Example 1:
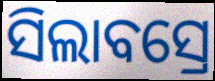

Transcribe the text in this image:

ସିଲାବସ୍ରେ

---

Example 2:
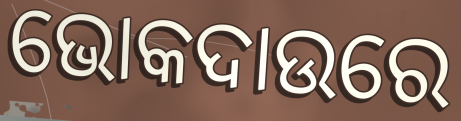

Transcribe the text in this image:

ଭୋକଦାଉରେ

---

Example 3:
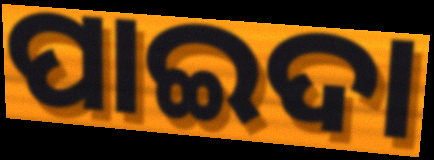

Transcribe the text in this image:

ପାଇଦା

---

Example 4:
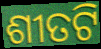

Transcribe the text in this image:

ଶୀତଟି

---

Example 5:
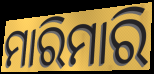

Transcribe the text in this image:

ମାରିମାରି